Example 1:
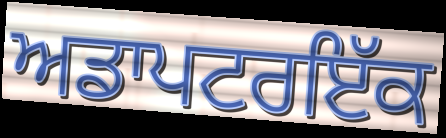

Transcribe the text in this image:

ਅਡਾਪਟਰਇੱਕ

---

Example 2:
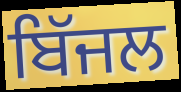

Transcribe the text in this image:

ਬਿੱਜਲ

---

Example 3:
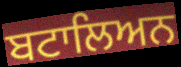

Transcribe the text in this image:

ਬਟਾਲਿਅਨ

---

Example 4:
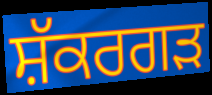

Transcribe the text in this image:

ਸ਼ੱਕਰਗੜ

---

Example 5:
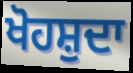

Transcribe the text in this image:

ਖੋਹਸ਼ੁਦਾ